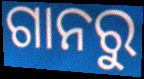
ଗାନରୁ